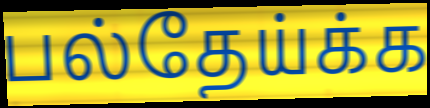
பல்தேய்க்க